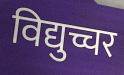
विद्युच्चर